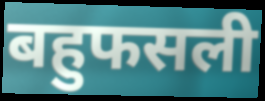
बहुफसली